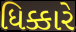
ધિક્કારે